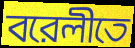
বরেলীতে